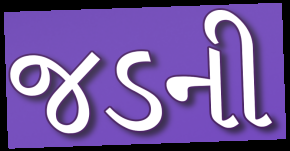
જડની